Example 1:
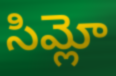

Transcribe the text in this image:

సిమ్లో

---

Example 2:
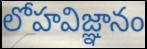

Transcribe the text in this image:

లోహవిజ్ఞానం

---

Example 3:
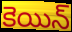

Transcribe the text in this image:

కెయిన్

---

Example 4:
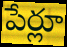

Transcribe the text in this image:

పేర్లూ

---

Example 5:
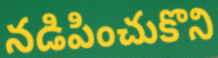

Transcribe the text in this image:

నడిపించుకొని